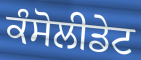
ਕੰਸੋਲੀਡੇਟ